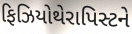
ફિઝિયોથેરાપિસ્ટને